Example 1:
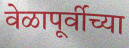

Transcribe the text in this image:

वेळापूर्वीच्या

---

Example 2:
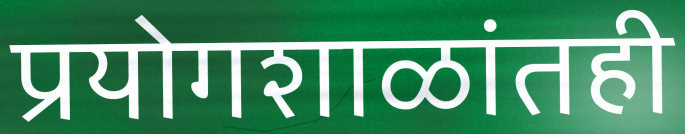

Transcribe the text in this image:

प्रयोगशाळांतही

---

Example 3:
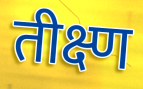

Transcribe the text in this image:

तीक्ष्ण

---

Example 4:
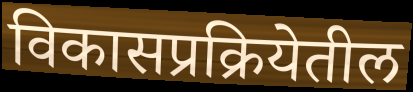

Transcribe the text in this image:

विकासप्रक्रियेतील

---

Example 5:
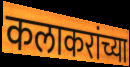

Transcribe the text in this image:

कलाकरांच्या